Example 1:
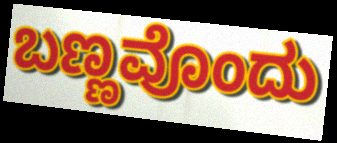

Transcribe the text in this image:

ಬಣ್ಣವೊಂದು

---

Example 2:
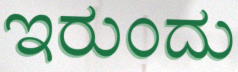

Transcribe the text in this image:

ಇರುಂದು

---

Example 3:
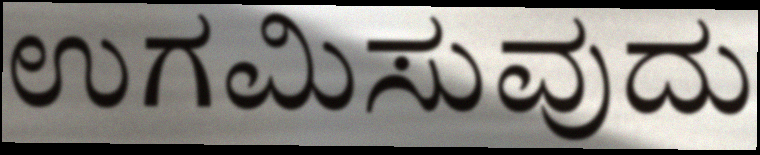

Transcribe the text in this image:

ಉಗಮಿಸುವುದು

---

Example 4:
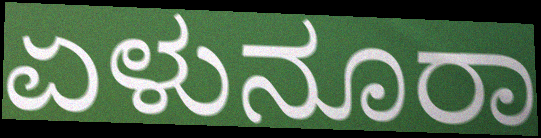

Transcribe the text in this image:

ಏಳುನೂರಾ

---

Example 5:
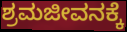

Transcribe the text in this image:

ಶ್ರಮಜೀವನಕ್ಕೆ